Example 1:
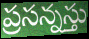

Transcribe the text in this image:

ప్రసన్నస్తు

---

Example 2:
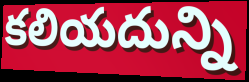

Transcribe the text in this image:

కలియదున్ని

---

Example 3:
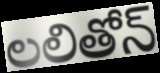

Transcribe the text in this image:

లలితోన్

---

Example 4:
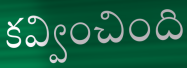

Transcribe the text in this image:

కవ్వించింది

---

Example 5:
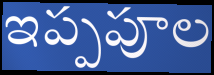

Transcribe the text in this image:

ఇప్పపూల